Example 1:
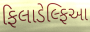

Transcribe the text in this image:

ફિલાડેલ્ફિઆ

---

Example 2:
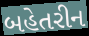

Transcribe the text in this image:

બહેતરીન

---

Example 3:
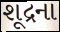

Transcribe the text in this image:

શૂદ્રના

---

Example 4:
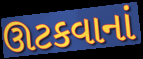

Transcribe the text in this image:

ઊટકવાનાં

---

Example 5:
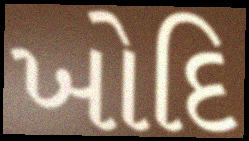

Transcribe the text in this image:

ખોદિ